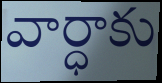
వార్ధాకు